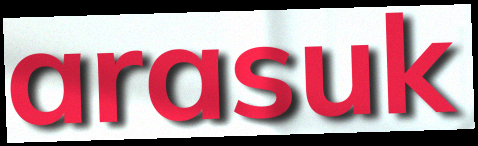
arasuk